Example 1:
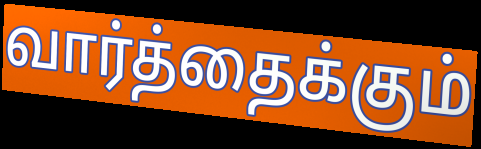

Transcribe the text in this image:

வார்த்தைக்கும்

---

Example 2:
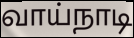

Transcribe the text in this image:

வாய்நாடி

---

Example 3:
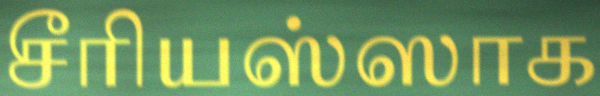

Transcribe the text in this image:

சீரியஸ்ஸாக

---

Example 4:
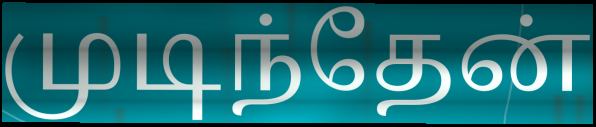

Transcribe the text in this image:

முடிந்தேன்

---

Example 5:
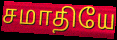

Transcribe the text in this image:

சமாதியே